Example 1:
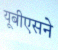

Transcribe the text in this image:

यूबीएसने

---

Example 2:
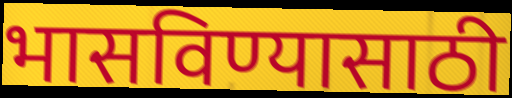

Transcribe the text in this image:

भासविण्यासाठी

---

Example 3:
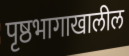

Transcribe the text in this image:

पृष्ठभागाखालील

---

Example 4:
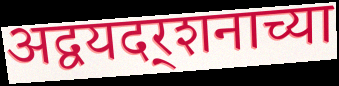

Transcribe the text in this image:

अद्वयदर्शनाच्या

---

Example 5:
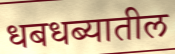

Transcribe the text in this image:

धबधब्यातील